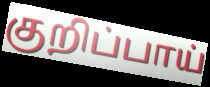
குறிப்பாய்